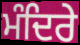
ਮੰਦਿਰੇ